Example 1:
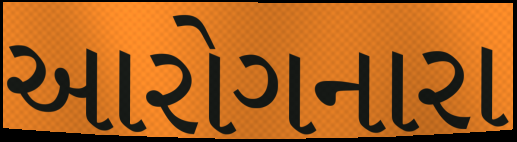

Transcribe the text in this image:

આરોગનારા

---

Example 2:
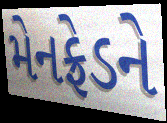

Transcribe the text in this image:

મેનફ્રેડને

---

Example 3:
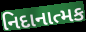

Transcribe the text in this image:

નિદાનાત્મક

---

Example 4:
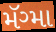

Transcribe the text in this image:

મૅગ્મા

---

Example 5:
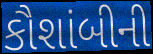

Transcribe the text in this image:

કૌશાંબીની